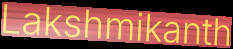
Lakshmikanth